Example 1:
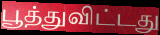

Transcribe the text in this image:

பூத்துவிட்டது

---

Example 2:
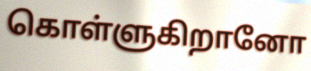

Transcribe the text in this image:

கொள்ளுகிறானோ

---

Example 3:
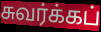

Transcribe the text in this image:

சுவர்க்கப்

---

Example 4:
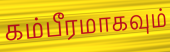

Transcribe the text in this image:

கம்பீரமாகவும்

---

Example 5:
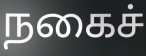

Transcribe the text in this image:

நகைச்